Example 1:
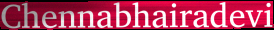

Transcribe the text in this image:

Chennabhairadevi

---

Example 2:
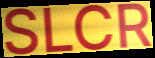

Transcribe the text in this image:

SLCR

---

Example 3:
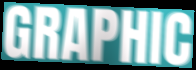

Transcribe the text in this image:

GRAPHIC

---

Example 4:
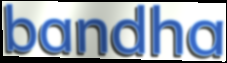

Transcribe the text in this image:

bandha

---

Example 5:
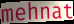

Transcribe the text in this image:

mehnat